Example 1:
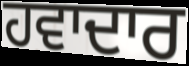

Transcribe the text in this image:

ਹਵਾਦਾਰ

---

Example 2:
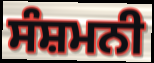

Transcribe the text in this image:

ਸੰਸ਼ਮਨੀ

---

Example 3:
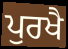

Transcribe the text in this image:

ਪੁਰਖੈ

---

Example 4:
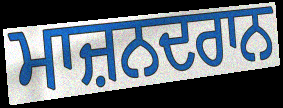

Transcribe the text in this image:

ਮਾਜ਼ਨਦਰਾਨ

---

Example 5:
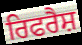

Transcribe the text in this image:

ਰਿਫਰੈਸ਼